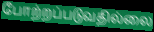
போற்றப்படுவதில்லை